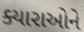
ક્યારાઓને